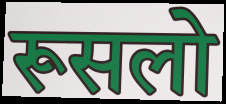
रूसलो